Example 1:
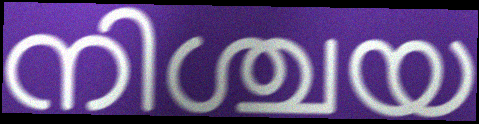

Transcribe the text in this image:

നിശ്ചയ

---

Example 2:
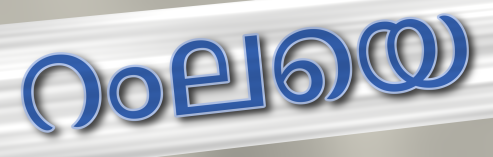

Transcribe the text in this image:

റംലയെ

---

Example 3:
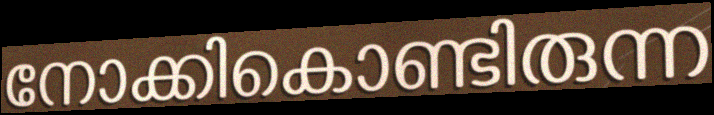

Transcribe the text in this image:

നോക്കികൊണ്ടിരുന്ന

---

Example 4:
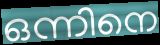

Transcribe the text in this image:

ഒന്നിനെ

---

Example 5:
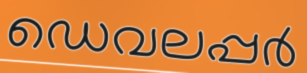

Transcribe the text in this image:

ഡെവലപ്പർ